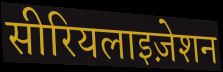
सीरियलाइज़ेशन